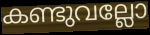
കണ്ടുവല്ലോ